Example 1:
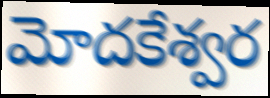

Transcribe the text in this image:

మోదకేశ్వర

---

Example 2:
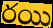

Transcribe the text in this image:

రయి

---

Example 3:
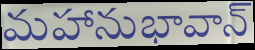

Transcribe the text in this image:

మహానుభావాన్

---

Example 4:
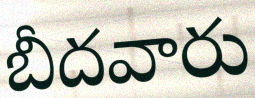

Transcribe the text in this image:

బీదవారు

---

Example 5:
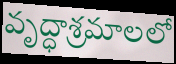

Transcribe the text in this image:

వృద్ధాశ్రమాలలో